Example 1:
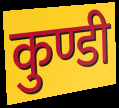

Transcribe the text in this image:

कुण्डी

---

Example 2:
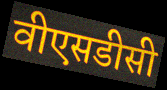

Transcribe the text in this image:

वीएसडीसी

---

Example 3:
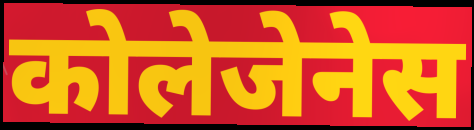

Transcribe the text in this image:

कोलेजेनेस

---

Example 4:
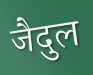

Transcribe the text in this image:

जैदुल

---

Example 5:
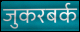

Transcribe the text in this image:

जुकरबर्क